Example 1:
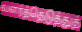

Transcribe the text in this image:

வளர்த்தெடுத்துத்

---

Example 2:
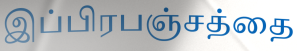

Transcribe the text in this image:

இப்பிரபஞ்சத்தை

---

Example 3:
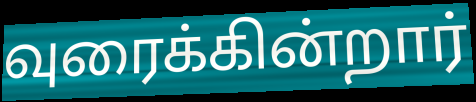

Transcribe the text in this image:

வுரைக்கின்றார்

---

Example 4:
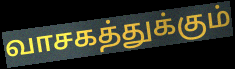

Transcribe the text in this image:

வாசகத்துக்கும்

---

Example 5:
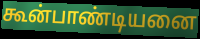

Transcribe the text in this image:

கூன்பாண்டியனை